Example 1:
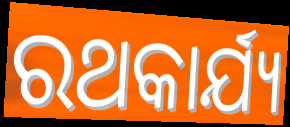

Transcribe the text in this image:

ରଥକାର୍ଯ୍ୟ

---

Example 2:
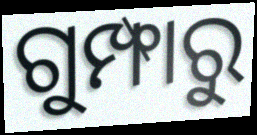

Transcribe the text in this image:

ଗୁମ୍ଫାରୁ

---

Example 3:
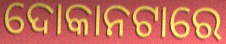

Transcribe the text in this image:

ଦୋକାନଟାରେ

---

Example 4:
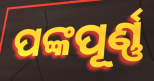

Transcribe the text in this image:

ପଙ୍କପୂର୍ଣ୍ଣ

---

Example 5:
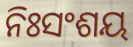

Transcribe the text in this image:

ନିଃସଂଶୟ